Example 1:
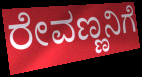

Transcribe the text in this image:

ರೇವಣ್ಣನಿಗೆ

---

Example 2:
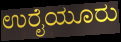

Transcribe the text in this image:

ಉರೈಯೂರು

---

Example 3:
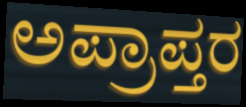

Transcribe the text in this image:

ಅಪ್ರಾಪ್ತರ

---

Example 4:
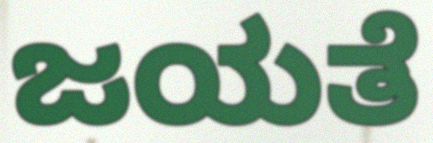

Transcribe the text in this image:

ಜಯತೆ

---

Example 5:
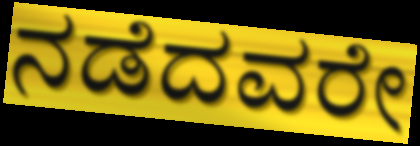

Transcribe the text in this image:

ನಡೆದವರೇ